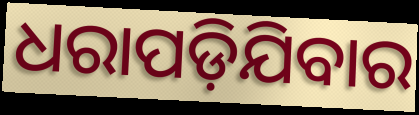
ଧରାପଡ଼ିଯିବାର